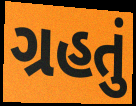
ગ્રહતું